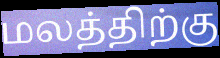
மலத்திற்கு